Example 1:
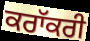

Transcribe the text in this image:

ਕਰਾੱਕਰੀ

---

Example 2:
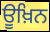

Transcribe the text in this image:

ਊਖ਼ਿਨ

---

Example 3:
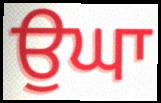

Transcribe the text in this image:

ਉਘਾ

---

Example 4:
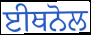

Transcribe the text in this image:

ਈਥਨੋਲ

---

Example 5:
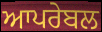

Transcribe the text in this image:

ਆਪਰੇਬਲ